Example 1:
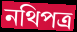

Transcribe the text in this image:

নথিপত্র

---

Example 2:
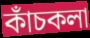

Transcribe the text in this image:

কাঁচকলা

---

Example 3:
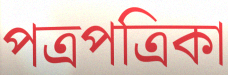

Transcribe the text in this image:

পত্রপত্রিকা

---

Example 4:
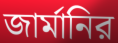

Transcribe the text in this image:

জার্মানির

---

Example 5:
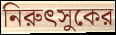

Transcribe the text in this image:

নিরুৎসুকের